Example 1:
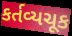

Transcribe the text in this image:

કર્તવ્યચૂક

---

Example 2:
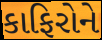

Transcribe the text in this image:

કાફિરોને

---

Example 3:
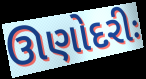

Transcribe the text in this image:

ઊણોદરીઃ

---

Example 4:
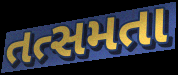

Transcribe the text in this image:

તત્સમતા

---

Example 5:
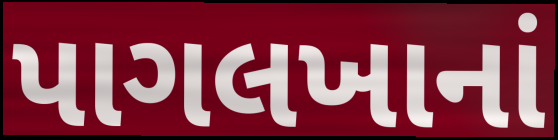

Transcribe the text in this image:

પાગલખાનાં